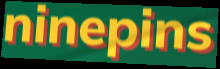
ninepins